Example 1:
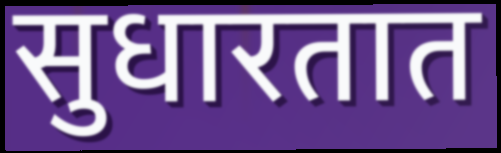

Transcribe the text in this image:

सुधारतात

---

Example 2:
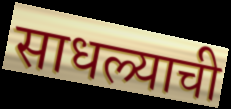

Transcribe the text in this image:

साधल्याची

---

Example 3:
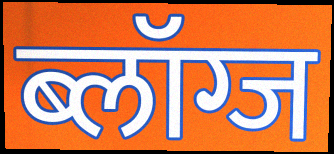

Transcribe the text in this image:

ब्लॉग्ज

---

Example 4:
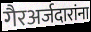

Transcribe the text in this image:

गैरअर्जदारांना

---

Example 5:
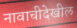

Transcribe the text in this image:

नावाचीदेखील